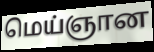
மெய்ஞான